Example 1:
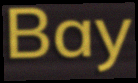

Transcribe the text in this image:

Bay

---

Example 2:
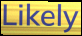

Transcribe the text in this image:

Likely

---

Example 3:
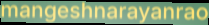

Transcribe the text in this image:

mangeshnarayanrao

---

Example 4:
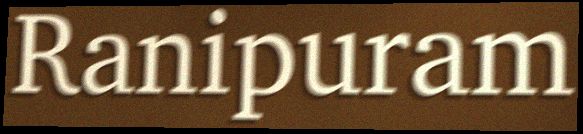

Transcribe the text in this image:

Ranipuram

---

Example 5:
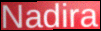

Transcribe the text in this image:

Nadira